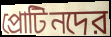
প্রোটিনদের